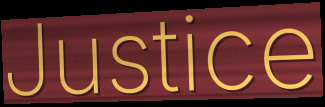
Justice